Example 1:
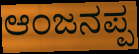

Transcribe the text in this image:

ಆಂಜನಪ್ಪ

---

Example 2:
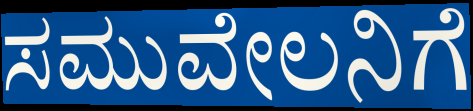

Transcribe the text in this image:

ಸಮುವೇಲನಿಗೆ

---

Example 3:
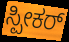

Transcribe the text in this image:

ಸ್ಪೀಕರ್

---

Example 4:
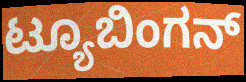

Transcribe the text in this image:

ಟ್ಯೂಬಿಂಗನ್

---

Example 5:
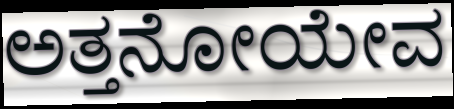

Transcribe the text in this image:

ಅತ್ತನೋಯೇವ